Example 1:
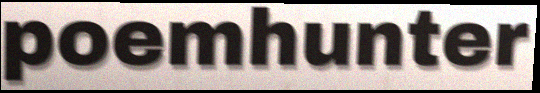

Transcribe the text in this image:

poemhunter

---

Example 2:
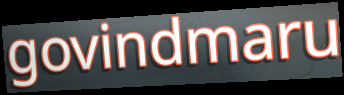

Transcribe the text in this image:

govindmaru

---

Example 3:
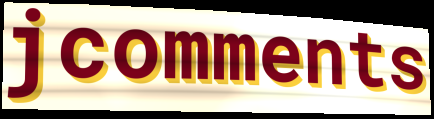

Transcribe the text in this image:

jcomments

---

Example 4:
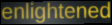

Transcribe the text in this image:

enlightened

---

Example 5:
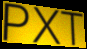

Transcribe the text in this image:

PXT